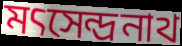
মৎসেন্দ্রনাথ